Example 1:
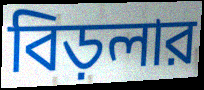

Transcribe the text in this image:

বিড়লার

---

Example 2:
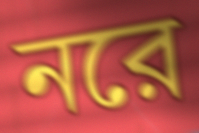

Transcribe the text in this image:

নরে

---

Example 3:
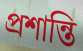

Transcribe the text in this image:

প্রশান্তি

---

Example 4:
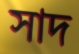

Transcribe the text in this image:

সাদ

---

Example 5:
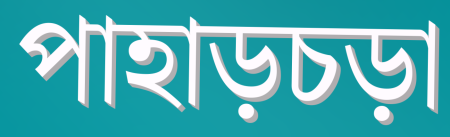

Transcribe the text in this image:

পাহাড়চড়া